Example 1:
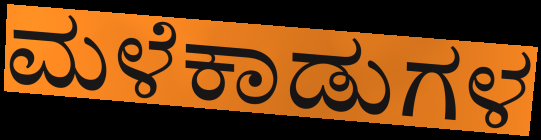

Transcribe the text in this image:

ಮಳೆಕಾಡುಗಳ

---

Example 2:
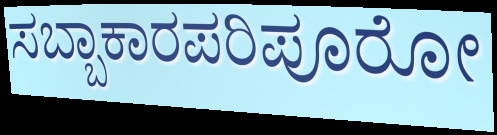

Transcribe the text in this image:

ಸಬ್ಬಾಕಾರಪರಿಪೂರೋ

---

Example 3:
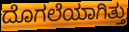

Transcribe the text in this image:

ದೊಗಲೆಯಾಗಿತ್ತು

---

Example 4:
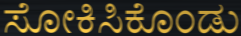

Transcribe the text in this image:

ಸೋಕಿಸಿಕೊಂಡು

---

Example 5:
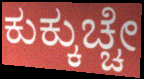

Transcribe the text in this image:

ಕುಕ್ಕುಚ್ಚೇ